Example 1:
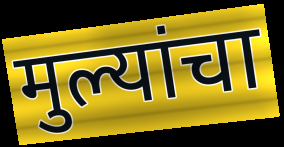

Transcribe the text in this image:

मुल्यांचा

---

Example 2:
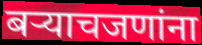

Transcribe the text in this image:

बऱ्याचजणांना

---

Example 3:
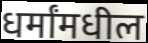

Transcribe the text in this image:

धर्मांमधील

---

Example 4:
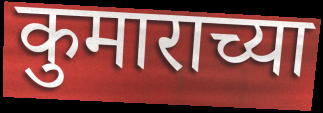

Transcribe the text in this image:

कुमाराच्या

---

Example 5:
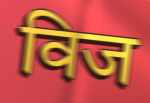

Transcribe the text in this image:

विज